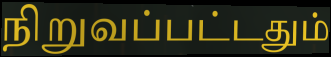
நிறுவப்பட்டதும்